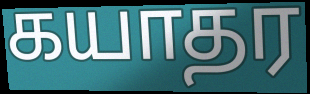
கயாதர